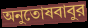
অনুতোষবাবুর